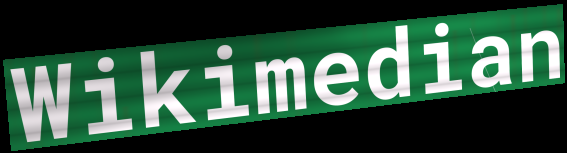
Wikimedian